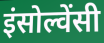
इंसोल्वेंसी